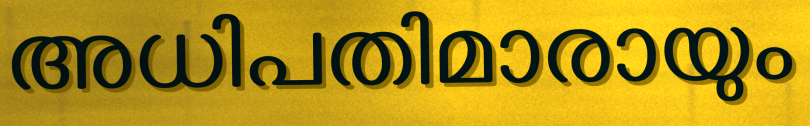
അധിപതിമാരായും